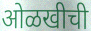
ओळखीची